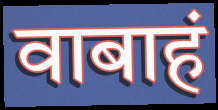
वाबाहं